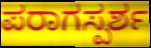
ಪರಾಗಸ್ಪರ್ಶ